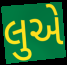
લુએ